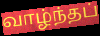
வாழ்ந்தப்